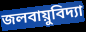
জলবায়ুবিদ্যা